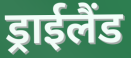
ड्राईलैंड